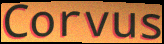
Corvus